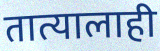
तात्यालाही